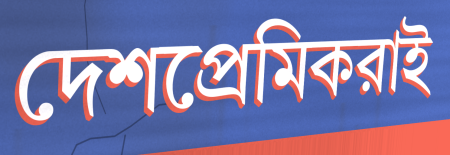
দেশপ্রেমিকরাই